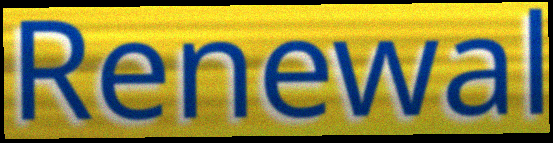
Renewal